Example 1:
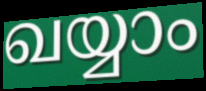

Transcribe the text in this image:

ഖയ്യാം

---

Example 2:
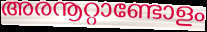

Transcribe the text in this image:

അരനൂറ്റാണ്ടോളം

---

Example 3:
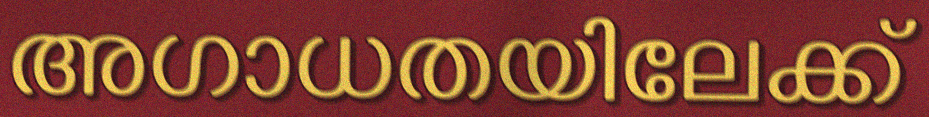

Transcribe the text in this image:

അഗാധതയിലേക്ക്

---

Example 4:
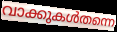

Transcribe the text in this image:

വാക്കുകൾതന്നെ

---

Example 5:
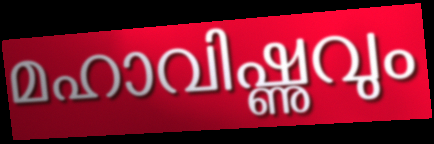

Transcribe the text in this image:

മഹാവിഷ്ണുവും